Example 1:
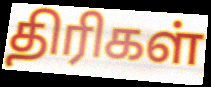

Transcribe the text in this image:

திரிகள்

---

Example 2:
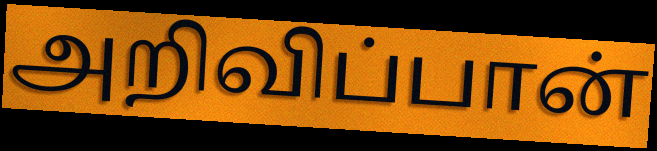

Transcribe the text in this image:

அறிவிப்பான்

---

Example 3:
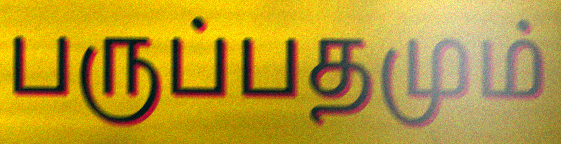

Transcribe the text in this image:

பருப்பதமும்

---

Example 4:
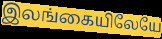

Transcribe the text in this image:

இலங்கையிலேயே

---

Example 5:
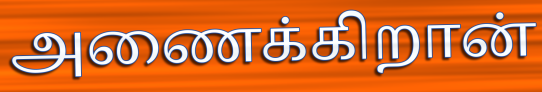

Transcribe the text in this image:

அணைக்கிறான்